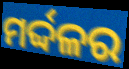
ମର୍ଦ୍ଦଳର